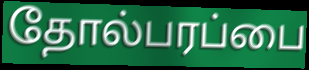
தோல்பரப்பை